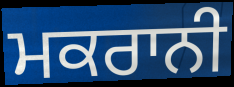
ਮਕਰਾਨੀ